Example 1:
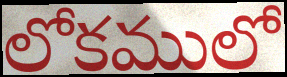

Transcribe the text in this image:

లోకములో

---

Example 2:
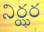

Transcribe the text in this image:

నిర్ఝర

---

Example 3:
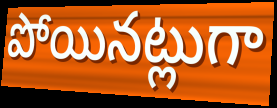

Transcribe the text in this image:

పోయినట్లుగా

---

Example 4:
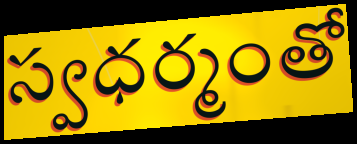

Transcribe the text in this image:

స్వధర్మంతో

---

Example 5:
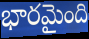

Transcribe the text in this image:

భారమైంది